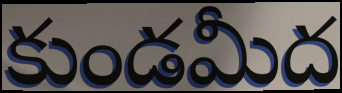
కుండమీద